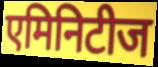
एमिनिटीज